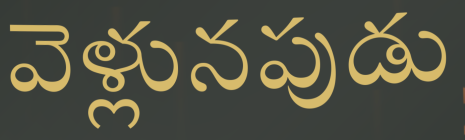
వెళ్లునపుడు